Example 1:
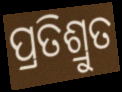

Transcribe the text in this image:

ପ୍ରତିଶ୍ରୁତ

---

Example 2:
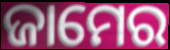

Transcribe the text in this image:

ଜାମେର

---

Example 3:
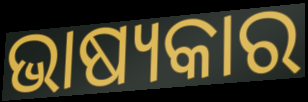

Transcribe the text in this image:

ଭାଷ୍ୟକାର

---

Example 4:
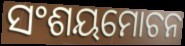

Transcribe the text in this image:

ସଂଶୟମୋଚନ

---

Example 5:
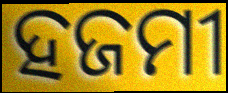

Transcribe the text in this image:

ହଜମୀ